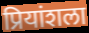
प्रियांशला